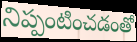
నిప్పంటించడంతో